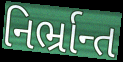
નિર્ભ્રાન્ત